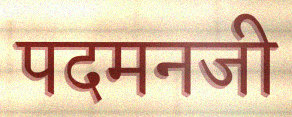
पदमनजी